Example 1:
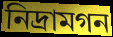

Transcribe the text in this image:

নিদ্রামগন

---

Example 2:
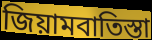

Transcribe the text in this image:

জিয়ামবাতিস্তা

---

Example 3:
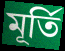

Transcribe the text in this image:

মূর্তি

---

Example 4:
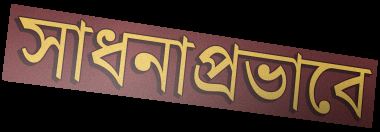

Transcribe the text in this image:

সাধনাপ্রভাবে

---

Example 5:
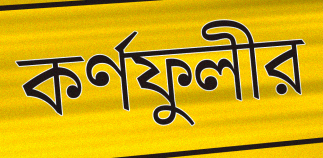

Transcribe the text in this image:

কর্ণফুলীর